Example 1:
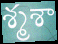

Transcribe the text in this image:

శ్మశా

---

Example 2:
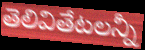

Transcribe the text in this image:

తెలివితేటలన్నీ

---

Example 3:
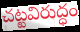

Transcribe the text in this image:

చట్టవిరుద్ధం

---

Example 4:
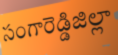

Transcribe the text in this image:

సంగారెడ్డిజిల్లా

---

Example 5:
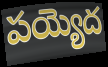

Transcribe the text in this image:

పయ్యెద